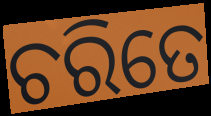
ଚରିତେ